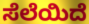
ಸೆಲೆಯಿದೆ